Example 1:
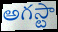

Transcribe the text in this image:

అగస్టా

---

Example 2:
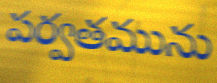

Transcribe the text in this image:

పర్వతమును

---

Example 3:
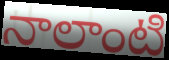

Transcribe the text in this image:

నాలాంటి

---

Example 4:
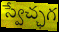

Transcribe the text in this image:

స్వేచ్ఛగ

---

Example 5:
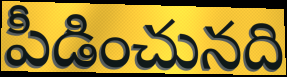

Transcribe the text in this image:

పీడించునది